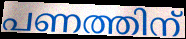
പണത്തിന്